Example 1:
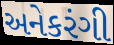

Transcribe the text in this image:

અનેકરંગી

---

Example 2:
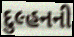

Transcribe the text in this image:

દુલ્હનની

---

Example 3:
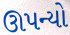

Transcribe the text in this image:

ઊપન્યો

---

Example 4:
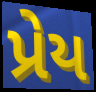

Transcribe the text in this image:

પ્રેય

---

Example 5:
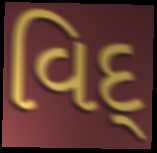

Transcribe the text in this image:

વિદ્